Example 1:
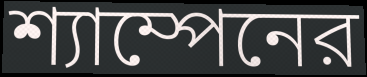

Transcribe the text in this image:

শ্যাম্পেনের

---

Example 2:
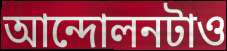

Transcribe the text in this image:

আন্দোলনটাও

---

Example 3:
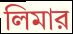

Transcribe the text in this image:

লিমার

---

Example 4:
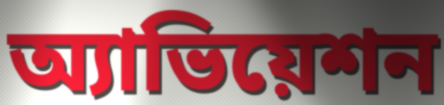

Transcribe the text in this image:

অ্যাভিয়েশন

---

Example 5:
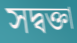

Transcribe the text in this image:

সদ্বক্তা